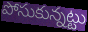
పోసుకున్నట్టు